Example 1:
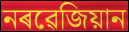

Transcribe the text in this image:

নৰৱেজিয়ান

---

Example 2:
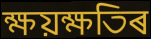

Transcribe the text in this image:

ক্ষয়ক্ষতিৰ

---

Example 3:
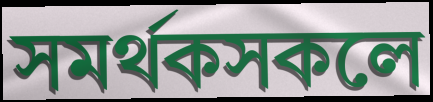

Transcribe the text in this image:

সমৰ্থকসকলে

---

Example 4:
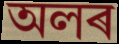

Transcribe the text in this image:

অলৰ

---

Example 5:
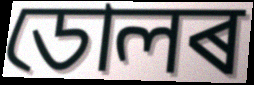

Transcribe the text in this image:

ডোলৰ